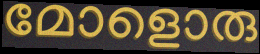
മോളൊരു